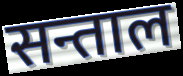
सन्ताल